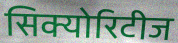
सिक्योरिटीज